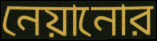
নেয়ানোর